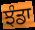
ਝੰਡਾ